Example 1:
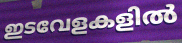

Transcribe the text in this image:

ഇടവേളകളിൽ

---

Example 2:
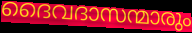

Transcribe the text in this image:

ദൈവദാസന്മാരും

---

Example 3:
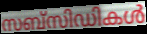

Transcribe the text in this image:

സബ്സിഡികൾ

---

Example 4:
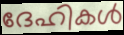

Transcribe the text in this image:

ദേഹികൾ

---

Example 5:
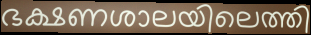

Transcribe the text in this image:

ഭക്ഷണശാലയിലെത്തി